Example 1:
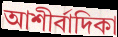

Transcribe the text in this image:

আশীর্বাদিকা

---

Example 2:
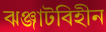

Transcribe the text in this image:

ঝঞ্জাটবিহীন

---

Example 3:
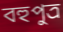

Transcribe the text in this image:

বহুপুত্র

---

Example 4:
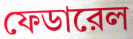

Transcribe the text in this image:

ফেডারেল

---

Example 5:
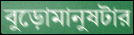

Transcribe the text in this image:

বুড়োমানুষটার